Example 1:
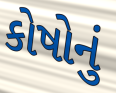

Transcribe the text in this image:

કોષોનું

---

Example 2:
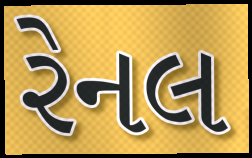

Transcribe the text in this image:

રેનલ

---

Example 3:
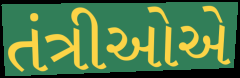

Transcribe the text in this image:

તંત્રીઓએ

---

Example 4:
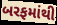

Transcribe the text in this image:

બરફમાંથી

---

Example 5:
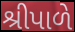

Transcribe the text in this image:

શ્રીપાળે